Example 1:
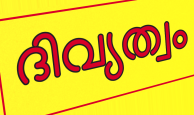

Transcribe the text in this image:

ദിവ്യത്വം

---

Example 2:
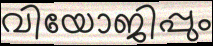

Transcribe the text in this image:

വിയോജിപ്പും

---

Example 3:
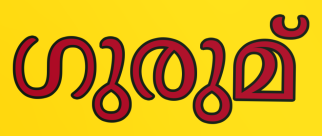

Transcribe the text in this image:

ഗുരുമ്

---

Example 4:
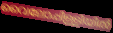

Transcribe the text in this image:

വൈലോപ്പിള്ളിയിൽ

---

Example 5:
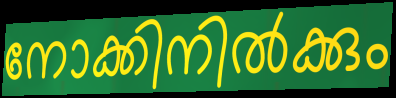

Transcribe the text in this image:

നോക്കിനിൽക്കും